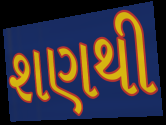
શણથી